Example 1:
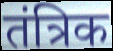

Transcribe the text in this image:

तंत्रिक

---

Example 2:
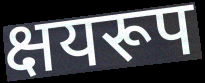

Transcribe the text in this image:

क्षयरूप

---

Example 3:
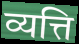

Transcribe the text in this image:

व्यत्ति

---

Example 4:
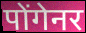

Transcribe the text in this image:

पोंगेनर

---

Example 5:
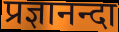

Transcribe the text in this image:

प्रज्ञानन्दा